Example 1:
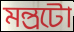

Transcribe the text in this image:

মন্ত্ৰটো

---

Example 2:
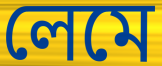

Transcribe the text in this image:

লেমে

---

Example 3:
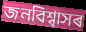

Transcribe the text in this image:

জনবিশ্বাসৰ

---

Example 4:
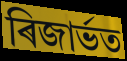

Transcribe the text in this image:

ৰিজাৰ্ভত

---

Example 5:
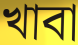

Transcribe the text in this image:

খাবা